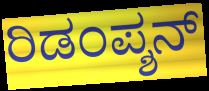
ರಿಡಂಪ್ಶನ್